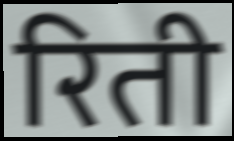
रिती